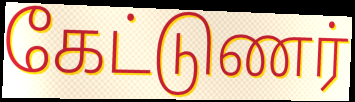
கேட்டுணர்